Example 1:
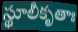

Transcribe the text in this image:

స్థూలీకృతాః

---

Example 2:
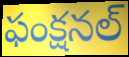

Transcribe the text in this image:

ఫంక్షనల్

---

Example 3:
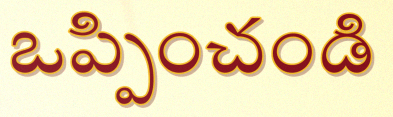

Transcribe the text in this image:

ఒప్పించండి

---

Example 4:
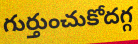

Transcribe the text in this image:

గుర్తుంచుకోదగ్గ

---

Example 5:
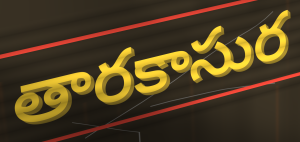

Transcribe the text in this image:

తారకాసుర